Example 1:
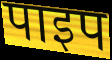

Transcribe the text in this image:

पाइप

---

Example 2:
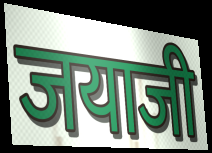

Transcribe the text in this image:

जयाजी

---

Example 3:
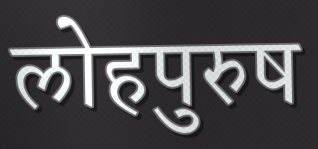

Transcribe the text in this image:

लोहपुरुष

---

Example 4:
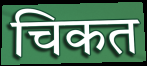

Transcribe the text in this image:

चिकत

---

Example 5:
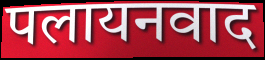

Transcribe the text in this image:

पलायनवाद